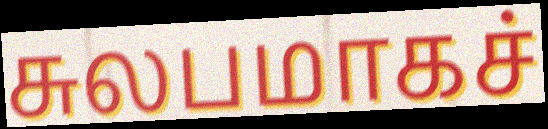
சுலபமாகச்